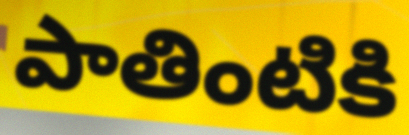
పాతింటికి